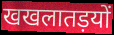
खखलातड़यों